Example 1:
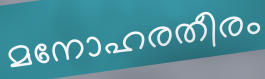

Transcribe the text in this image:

മനോഹരതീരം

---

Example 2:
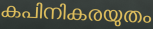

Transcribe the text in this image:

കപിനികരയുതം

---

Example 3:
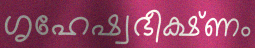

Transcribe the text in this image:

ഗൃഹേഷ്വഭീക്ഷ്ണം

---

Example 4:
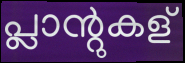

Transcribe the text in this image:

പ്ലാന്റുകള്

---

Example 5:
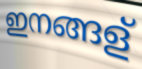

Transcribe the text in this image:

ഇനങ്ങള്